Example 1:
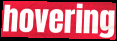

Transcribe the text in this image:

hovering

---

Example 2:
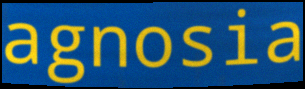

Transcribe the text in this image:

agnosia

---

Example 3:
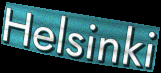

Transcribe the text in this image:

Helsinki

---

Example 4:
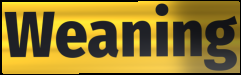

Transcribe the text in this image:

Weaning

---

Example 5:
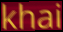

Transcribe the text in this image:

khai